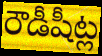
రౌడీషీట్ల